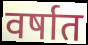
वर्षात